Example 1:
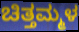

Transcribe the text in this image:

ಚಿತ್ತಮ್ಮಳ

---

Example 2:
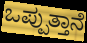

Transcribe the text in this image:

ಒಪ್ಪುತ್ತಾನೆ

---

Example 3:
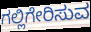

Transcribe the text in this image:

ಗಲ್ಲಿಗೇರಿಸುವ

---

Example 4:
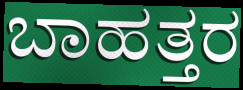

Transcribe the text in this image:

ಬಾಹತ್ತರ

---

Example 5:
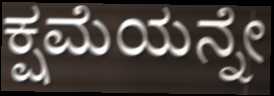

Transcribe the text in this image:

ಕ್ಷಮೆಯನ್ನೇ